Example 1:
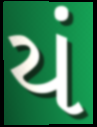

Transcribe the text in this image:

યં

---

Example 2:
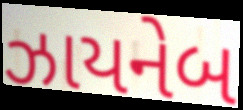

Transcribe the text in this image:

ઝાયનેબ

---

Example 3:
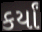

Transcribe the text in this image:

કર્યાં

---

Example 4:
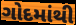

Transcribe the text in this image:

ગોદમાંથી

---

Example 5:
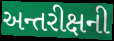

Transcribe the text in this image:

અન્તરીક્ષની